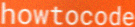
howtocode